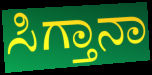
ಸಿಗ್ತಾನಾ